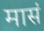
मासं